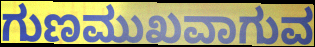
ಗುಣಮುಖವಾಗುವ